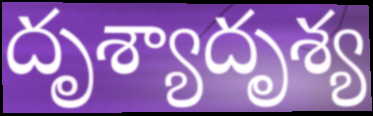
దృశ్యాదృశ్య